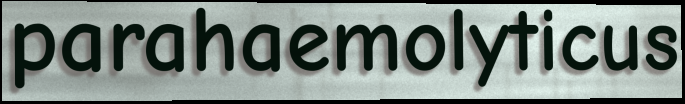
parahaemolyticus